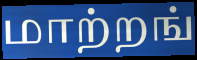
மாற்றங்